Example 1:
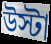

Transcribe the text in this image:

উস্টা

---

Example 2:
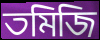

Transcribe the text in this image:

তমিজি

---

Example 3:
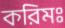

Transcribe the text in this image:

করিমঃ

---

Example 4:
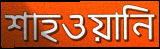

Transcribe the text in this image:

শাহওয়ানি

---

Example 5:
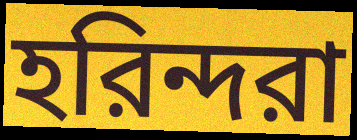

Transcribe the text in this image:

হরিন্দরা